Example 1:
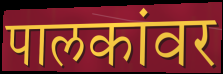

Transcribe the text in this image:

पालकांवर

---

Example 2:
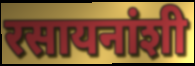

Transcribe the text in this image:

रसायनांशी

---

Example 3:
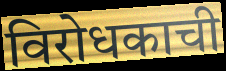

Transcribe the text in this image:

विरोधकाची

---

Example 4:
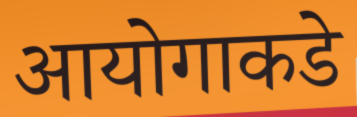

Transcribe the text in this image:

आयोगाकडे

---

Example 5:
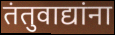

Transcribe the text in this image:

तंतुवाद्यांना